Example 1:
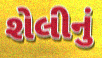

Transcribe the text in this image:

શેલીનું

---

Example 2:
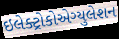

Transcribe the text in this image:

ઇલેક્ટ્રોકોએગ્યુલેશન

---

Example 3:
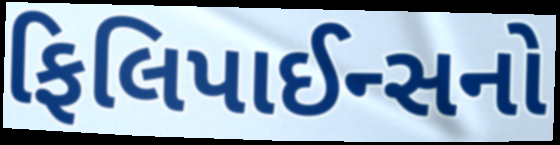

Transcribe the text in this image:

ફિલિપાઈન્સનો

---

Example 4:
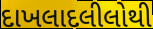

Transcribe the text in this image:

દાખલાદલીલોથી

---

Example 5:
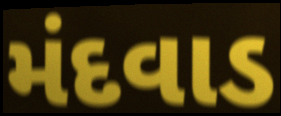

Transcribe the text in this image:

મંદવાડ